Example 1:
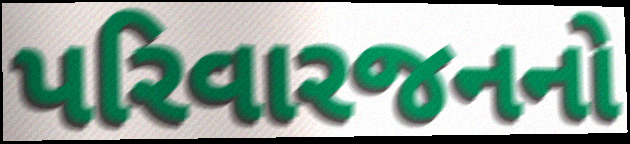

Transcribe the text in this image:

પરિવારજનનો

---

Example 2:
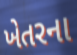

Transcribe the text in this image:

ખેતરના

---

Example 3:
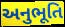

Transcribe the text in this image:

અનુભૂતિ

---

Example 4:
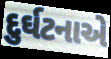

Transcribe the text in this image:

દુર્ઘટનાએ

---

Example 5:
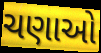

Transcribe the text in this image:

ચણાઓ